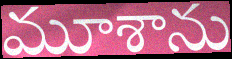
మూశాను